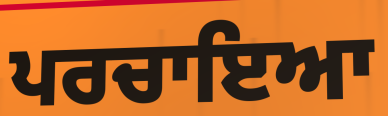
ਪਰਚਾਇਆ